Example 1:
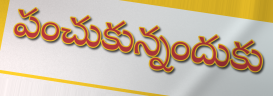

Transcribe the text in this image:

పంచుకున్నందుకు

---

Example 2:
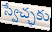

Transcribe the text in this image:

స్వేచ్ఛకు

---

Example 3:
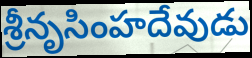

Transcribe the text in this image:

శ్రీనృసింహదేవుడు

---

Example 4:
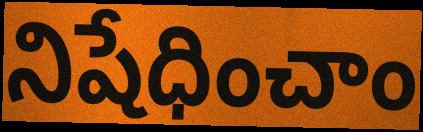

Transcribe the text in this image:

నిషేధించాం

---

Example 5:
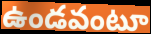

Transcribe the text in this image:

ఉండవంటూ